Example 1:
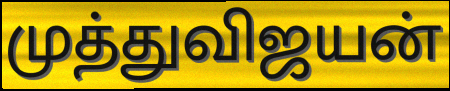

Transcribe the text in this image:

முத்துவிஜயன்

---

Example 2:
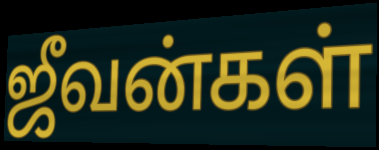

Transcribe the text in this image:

ஜீவன்கள்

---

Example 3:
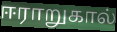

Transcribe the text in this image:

ஈராறுகால்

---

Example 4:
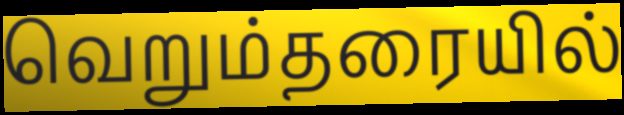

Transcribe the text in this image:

வெறும்தரையில்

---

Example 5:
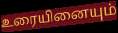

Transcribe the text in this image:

உரையினையும்